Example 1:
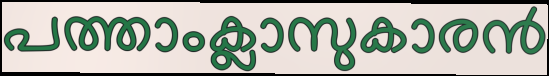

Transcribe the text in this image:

പത്താംക്ലാസുകാരൻ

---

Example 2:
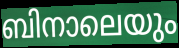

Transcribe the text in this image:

ബിനാലെയും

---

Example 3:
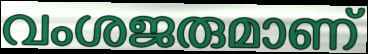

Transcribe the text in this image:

വംശജരുമാണ്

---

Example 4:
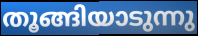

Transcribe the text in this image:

തൂങ്ങിയാടുന്നു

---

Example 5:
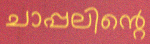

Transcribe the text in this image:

ചാപ്പലിന്റെ